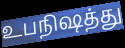
உபநிஷத்து